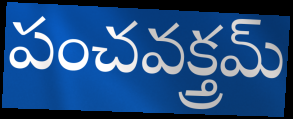
పంచవక్త్రమ్